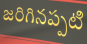
జరిగినప్పటి